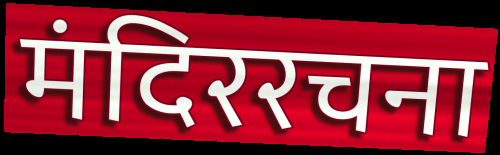
मंदिररचना